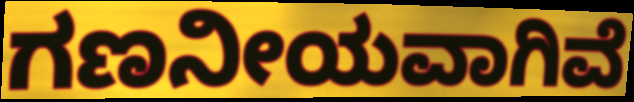
ಗಣನೀಯವಾಗಿವೆ